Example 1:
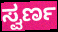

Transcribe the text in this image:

ಸ್ವರ್ಣ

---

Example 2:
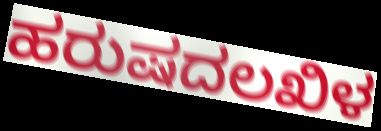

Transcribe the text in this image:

ಹರುಷದಲಖಿಳ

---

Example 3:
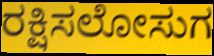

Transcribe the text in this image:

ರಕ್ಷಿಸಲೋಸುಗ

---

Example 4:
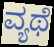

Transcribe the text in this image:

ವ್ಯಥೆ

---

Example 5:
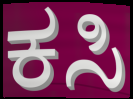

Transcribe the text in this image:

ಕಸಿ